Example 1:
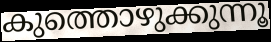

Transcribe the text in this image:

കുത്തൊഴുക്കുന്നൂ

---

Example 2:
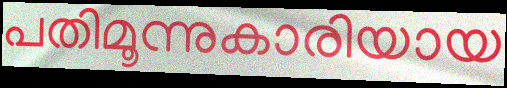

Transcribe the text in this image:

പതിമൂന്നുകാരിയായ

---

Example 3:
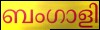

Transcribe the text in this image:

ബംഗാളി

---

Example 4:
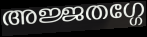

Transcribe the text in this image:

അജ്ജതഗ്ഗേ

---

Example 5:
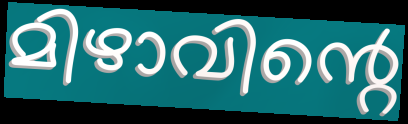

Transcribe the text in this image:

മിഴാവിന്റെ